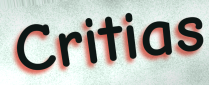
Critias